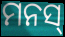
ମନସ୍